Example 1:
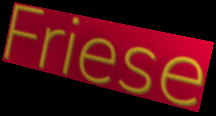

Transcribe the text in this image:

Friese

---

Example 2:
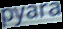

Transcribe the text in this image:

pyara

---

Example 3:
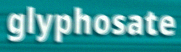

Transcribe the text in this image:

glyphosate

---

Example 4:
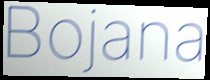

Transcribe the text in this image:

Bojana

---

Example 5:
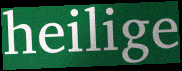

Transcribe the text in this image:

heilige